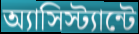
অ্যাসিস্ট্যান্টে